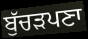
ਬੁੱਚੜਪਣਾ